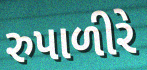
રુપાળીરે